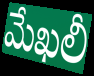
మేఖలీ